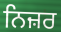
ਨਿਜ਼ਰ